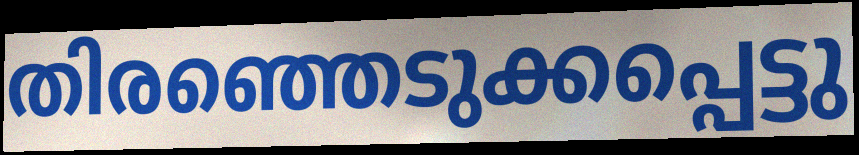
തിരഞ്ഞെടുക്കപ്പെട്ടു